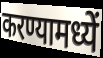
करण्यामध्यें